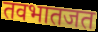
तवभातजत